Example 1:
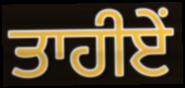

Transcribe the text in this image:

ਤਾਹੀਏਂ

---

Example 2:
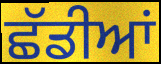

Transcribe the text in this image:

ਛੱਡੀਆਂ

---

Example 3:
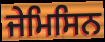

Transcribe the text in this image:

ਜੇਮਿਸਿਨ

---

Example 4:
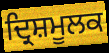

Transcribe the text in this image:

ਦ੍ਰਿਸ਼ਮੂਲਕ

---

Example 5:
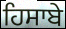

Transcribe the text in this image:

ਹਿਸਾਬੇ